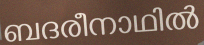
ബദരീനാഥിൽ